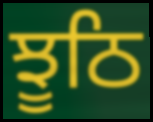
ਝੂਠਿ